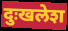
दुःखलेश